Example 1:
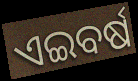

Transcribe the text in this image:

ଏଇବର୍ଷ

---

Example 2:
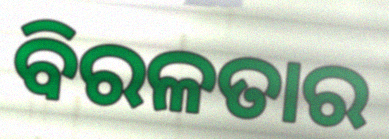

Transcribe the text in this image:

ବିରଳତାର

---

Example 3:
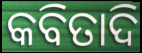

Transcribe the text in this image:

କବିତାଦି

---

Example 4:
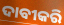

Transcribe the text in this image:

ଦାବୀକରି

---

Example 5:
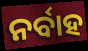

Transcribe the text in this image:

ନର୍ବାହ